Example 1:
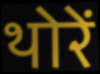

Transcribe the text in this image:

थोरें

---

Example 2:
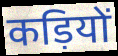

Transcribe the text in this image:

कड़ियों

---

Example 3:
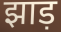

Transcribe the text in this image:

झाड़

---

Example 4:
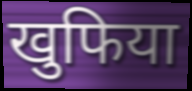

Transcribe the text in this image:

खुफिया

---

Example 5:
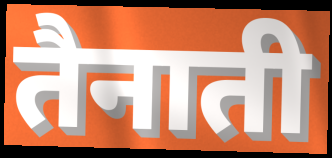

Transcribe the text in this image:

तैनाती